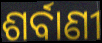
ଶର୍ବାଣୀ